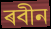
ৰবীন